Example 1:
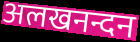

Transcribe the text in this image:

अलखनन्दन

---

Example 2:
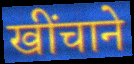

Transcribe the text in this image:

खींचाने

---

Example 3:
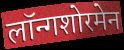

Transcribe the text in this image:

लॉन्गशोरमेन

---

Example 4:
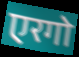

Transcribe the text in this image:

एरगो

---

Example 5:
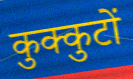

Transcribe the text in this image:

कुक्कुटों